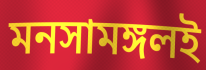
মনসামঙ্গলই